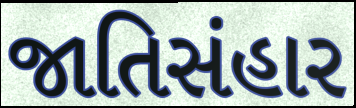
જાતિસંહાર